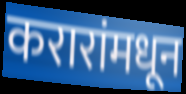
करारांमधून